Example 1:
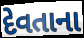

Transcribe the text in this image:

દેવતાના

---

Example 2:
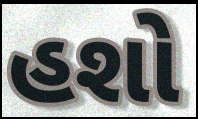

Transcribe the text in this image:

હશો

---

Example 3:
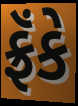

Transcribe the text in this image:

ફ્રૅંકે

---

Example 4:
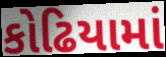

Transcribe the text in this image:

કોઢિયામાં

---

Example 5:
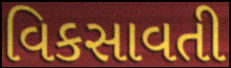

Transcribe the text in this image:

વિકસાવતી